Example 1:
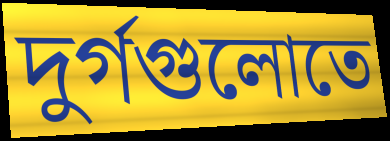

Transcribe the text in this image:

দুর্গগুলোতে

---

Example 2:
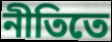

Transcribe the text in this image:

নীতিতে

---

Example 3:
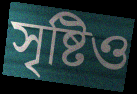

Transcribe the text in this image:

সৃষ্টিও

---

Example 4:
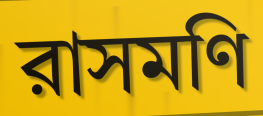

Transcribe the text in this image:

রাসমণি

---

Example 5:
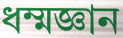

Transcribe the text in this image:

ধম্মজ্ঞান